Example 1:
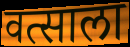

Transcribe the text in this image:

वत्साला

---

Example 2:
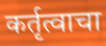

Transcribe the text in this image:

कर्तृत्वाचा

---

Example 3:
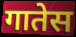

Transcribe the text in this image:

गातेस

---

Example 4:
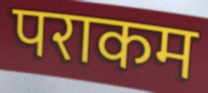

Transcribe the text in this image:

पराकम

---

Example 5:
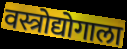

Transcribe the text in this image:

वस्त्रोद्योगाला